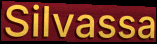
Silvassa